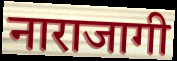
नाराजागी